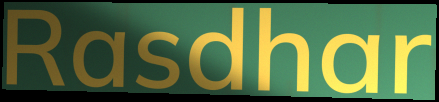
Rasdhar